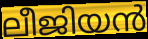
ലീജിയൻ